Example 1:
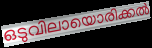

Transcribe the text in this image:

ഒടുവിലായൊരിക്കൽ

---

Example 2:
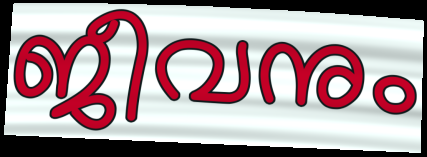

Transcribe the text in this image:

ജീവനും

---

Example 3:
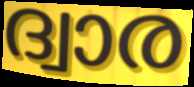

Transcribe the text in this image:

ദ്വാര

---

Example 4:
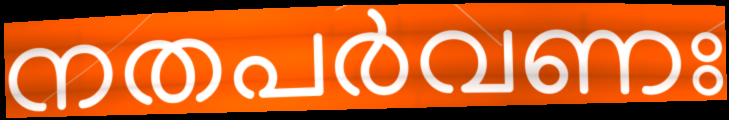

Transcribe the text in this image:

നതപർവണഃ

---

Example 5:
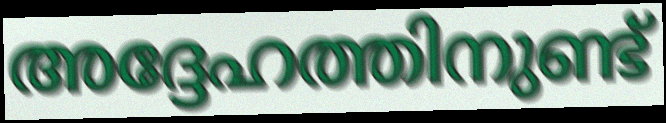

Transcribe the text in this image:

അദ്ദേഹത്തിനുണ്ട്